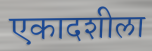
एकादशीला